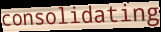
consolidating